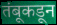
तंबूकडून